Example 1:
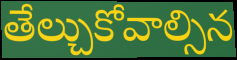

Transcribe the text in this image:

తేల్చుకోవాల్సిన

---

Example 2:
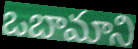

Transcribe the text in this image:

ఒబామాని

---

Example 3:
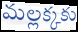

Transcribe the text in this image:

మల్లక్కకు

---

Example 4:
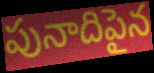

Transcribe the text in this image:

పునాదిపైన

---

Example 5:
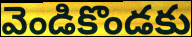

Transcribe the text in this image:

వెండికొండకు